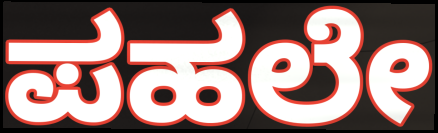
ಪಹಲೇ